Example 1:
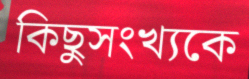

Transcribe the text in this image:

কিছুসংখ্যকে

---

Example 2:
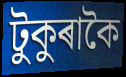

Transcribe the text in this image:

টুকুৰাকৈ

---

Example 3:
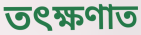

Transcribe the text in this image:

তৎক্ষণাত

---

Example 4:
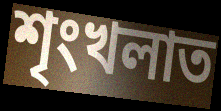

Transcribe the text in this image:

শৃংখলাত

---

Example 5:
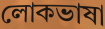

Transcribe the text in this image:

লোকভাষা